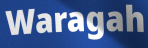
Waragah